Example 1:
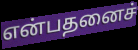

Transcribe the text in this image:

என்பதனைச்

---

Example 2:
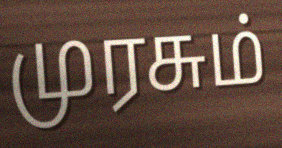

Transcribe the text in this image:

முரசும்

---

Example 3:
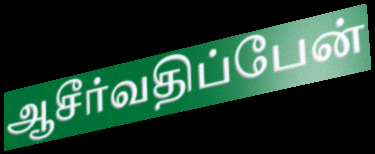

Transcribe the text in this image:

ஆசீர்வதிப்பேன்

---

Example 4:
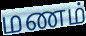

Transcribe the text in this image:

மணம்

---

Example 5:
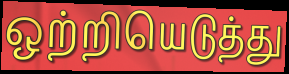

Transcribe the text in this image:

ஒற்றியெடுத்து